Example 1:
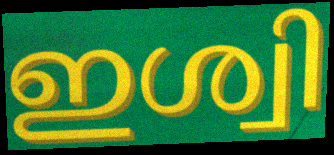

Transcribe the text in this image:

ഇശ്വി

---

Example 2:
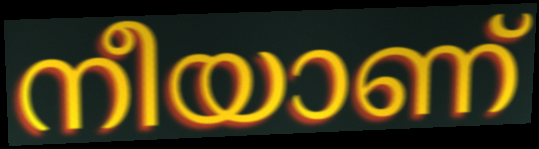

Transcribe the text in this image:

നീയാണ്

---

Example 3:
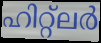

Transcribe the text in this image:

ഹിറ്റ്ലർ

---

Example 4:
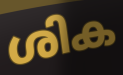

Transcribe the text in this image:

ശിക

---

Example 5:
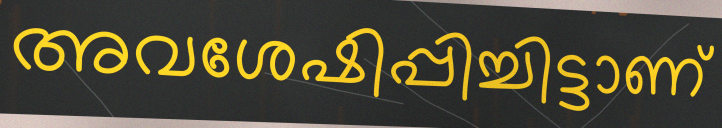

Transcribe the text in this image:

അവശേഷിപ്പിച്ചിട്ടാണ്